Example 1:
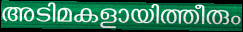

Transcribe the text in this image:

അടിമകളായിത്തീരും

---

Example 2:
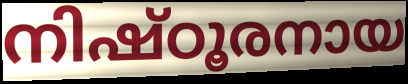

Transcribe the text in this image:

നിഷ്ഠൂരനായ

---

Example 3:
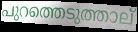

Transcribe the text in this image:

പുറത്തെടുത്താല്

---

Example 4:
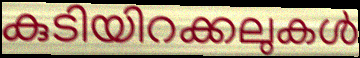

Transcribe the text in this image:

കുടിയിറക്കലുകൾ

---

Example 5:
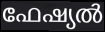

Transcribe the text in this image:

ഫേഷ്യൽ